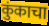
कुंकाचा